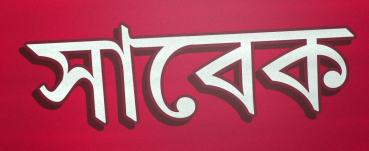
সাবেক